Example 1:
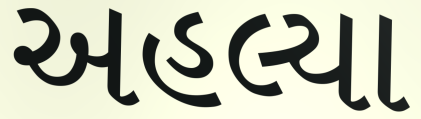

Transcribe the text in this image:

અહલ્યા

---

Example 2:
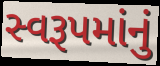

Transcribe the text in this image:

સ્વરૂપમાંનું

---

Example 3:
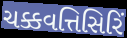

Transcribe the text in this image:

ચક્કવત્તિસિરિં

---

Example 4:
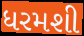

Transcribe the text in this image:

ધરમશી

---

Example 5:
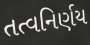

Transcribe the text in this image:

તત્વનિર્ણય